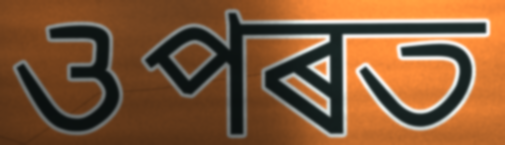
ওপৰত